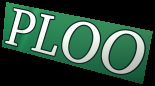
PLOO